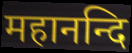
महानन्दि